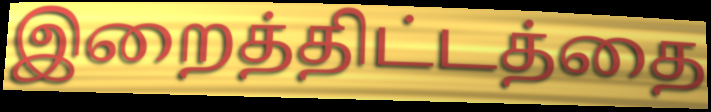
இறைத்திட்டத்தை